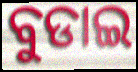
ବୁଡାଇ